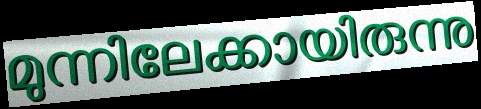
മുന്നിലേക്കായിരുന്നു